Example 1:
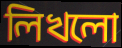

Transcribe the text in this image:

লিখলো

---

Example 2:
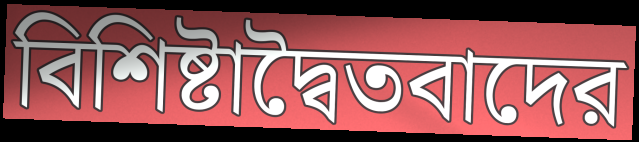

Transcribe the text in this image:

বিশিষ্টাদ্বৈতবাদের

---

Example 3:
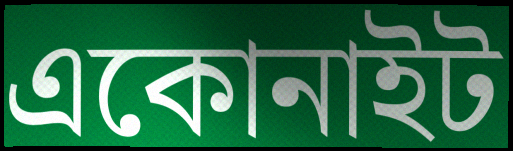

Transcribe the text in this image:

একোনাইট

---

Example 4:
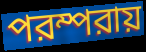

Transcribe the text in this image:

পরম্পরায়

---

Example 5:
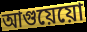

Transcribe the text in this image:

আগুয়েয়ো